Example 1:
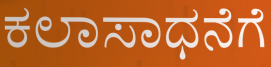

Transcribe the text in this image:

ಕಲಾಸಾಧನೆಗೆ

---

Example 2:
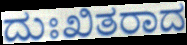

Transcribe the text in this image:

ದುಃಖಿತರಾದ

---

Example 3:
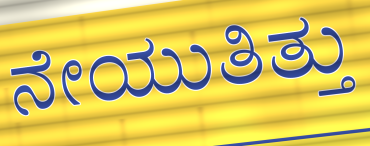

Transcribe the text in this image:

ನೇಯುತಿತ್ತು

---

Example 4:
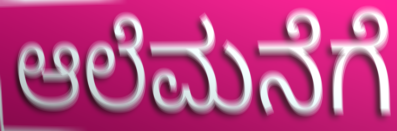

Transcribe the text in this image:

ಆಲೆಮನೆಗೆ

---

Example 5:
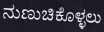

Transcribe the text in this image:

ನುಣುಚಿಕೊಳ್ಳಲು